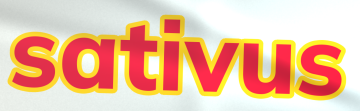
sativus